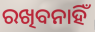
ରଖିବନାହିଁ